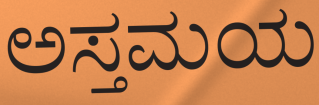
ಅಸ್ತಮಯ